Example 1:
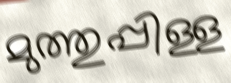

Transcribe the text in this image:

മുത്തുപ്പിള്ള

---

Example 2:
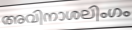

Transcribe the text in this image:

അവിനാശലിംഗം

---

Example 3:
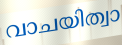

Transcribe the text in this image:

വാചയിത്വാ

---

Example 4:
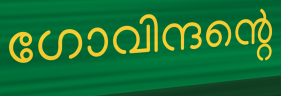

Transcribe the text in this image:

ഗോവിന്ദന്റെ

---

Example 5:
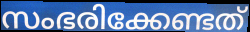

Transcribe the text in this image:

സംഭരിക്കേണ്ടത്